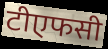
टीएफसी